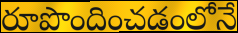
రూపొందించడంలోనే